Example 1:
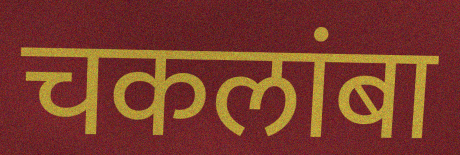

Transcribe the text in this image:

चकलांबा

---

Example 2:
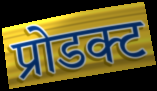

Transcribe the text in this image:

प्रोडक्ट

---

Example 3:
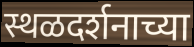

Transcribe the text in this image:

स्थळदर्शनाच्या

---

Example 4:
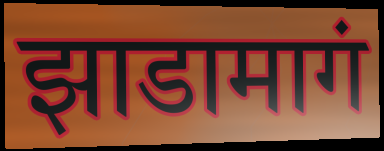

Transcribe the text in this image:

झाडामागं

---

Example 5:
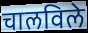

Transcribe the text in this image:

चालविले